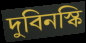
দুবিনস্কি